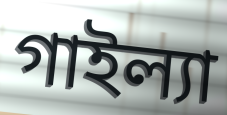
গাইল্যা